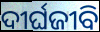
ଦୀର୍ଘଜୀବି